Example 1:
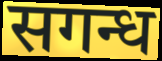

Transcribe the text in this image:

सगन्ध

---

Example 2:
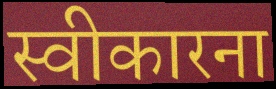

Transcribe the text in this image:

स्वीकारना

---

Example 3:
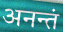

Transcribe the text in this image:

अनन्तं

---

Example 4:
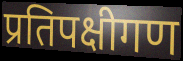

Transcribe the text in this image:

प्रतिपक्षीगण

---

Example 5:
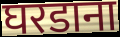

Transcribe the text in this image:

घरडाना